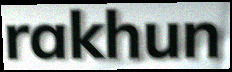
rakhun